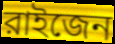
রাইজেন